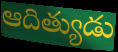
ఆదిత్యుడు